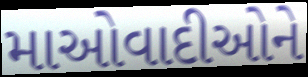
માઓવાદીઓને